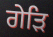
ਗੇੜਿ